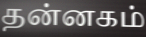
தன்னகம்